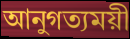
আনুগত্যময়ী